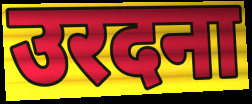
उरदना